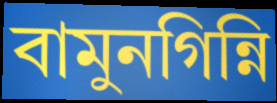
বামুনগিন্নি